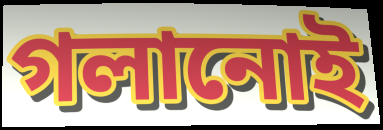
গলানোই